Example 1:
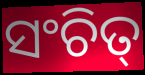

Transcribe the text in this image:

ସଂଚିତ୍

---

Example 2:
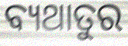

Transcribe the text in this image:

ବ୍ୟଥାତୁର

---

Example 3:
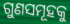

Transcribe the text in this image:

ଗୁଣସମୂହକୁ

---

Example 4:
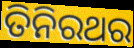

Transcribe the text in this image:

ତିନିରଥର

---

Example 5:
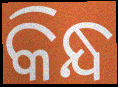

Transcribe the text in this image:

କିନ୍ଧ